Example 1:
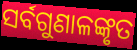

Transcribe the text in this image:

ସର୍ବଗୁଣାଳଙ୍କୃତ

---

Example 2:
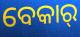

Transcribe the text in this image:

ବେକାର୍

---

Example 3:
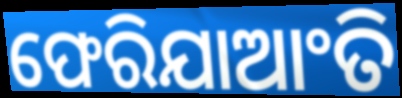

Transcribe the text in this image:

ଫେରିଯାଆଂତି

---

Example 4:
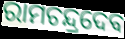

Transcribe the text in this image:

ରାମଚନ୍ଦ୍ରଦେବ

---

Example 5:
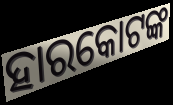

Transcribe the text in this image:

ହାରକୋଟଙ୍କ